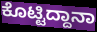
ಕೊಟ್ಟಿದ್ದಾನಾ